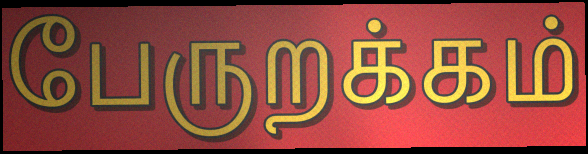
பேருறக்கம்